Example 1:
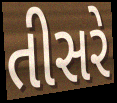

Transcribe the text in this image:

તીસરે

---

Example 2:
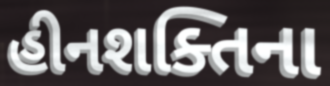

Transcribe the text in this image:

હીનશક્તિના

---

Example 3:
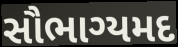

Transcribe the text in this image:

સૌભાગ્યમદ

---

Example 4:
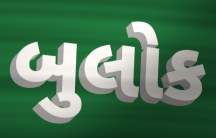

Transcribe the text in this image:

બુલોક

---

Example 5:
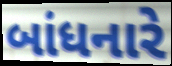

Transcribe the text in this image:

બાંધનારે